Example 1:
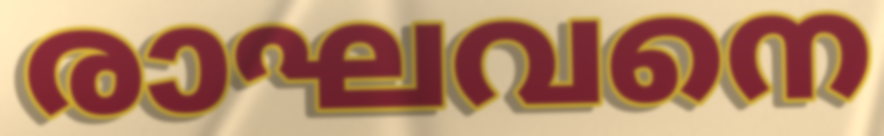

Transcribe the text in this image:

രാഘവനെ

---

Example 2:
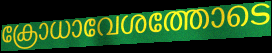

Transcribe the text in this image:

ക്രോധാവേശത്തോടെ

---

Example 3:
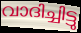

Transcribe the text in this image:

വാദിച്ചിട്ടു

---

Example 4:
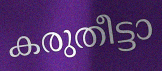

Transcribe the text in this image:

കരുതീട്ടാ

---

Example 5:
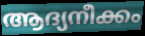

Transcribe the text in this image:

ആദ്യനീക്കം